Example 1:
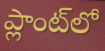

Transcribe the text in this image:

ప్లాంట్‌లో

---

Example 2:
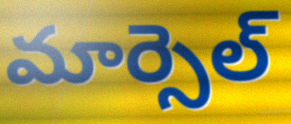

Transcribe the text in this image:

మార్సెల్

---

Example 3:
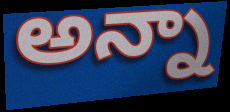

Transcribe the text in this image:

అన్నా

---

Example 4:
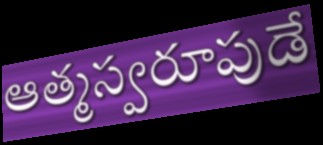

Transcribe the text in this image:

ఆత్మస్వరూపుడే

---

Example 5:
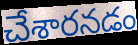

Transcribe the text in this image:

చేశారనడం